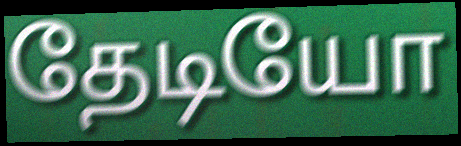
தேடியோ